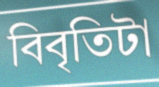
বিবৃতিটা